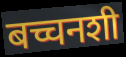
बच्चनशी